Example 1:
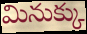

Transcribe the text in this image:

మినుక్కు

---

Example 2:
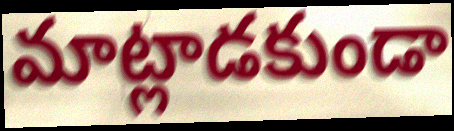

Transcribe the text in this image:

మాట్లాడకుండా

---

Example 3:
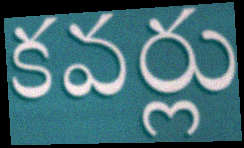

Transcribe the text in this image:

కవర్లు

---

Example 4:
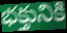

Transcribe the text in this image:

భక్తునికి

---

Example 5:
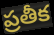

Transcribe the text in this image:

ప్రతీక